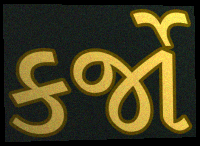
કર્જો